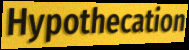
Hypothecation